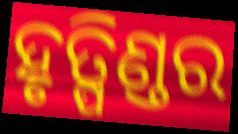
ହୃତ୍ପିଣ୍ଡର